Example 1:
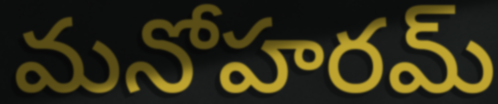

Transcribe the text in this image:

మనోహరమ్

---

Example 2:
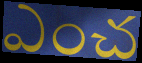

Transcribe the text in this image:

ఎంచ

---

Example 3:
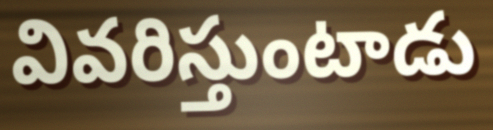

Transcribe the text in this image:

వివరిస్తుంటాడు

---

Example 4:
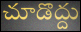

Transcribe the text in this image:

చూడొద్దు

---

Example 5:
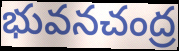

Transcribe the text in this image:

భువనచంద్ర